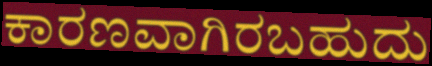
ಕಾರಣವಾಗಿರಬಹುದು